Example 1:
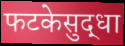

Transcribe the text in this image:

फटकेसुद्धा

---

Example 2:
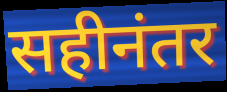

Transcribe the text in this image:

सहीनंतर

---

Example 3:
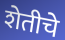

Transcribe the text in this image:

शेतीचे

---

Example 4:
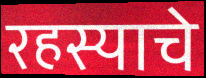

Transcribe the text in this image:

रहस्याचे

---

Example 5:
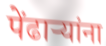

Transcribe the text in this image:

पेंढाऱ्यांना